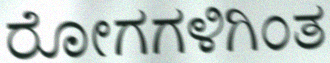
ರೋಗಗಳಿಗಿಂತ